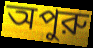
অপুরু